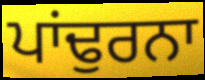
ਪਾਂਢੁਰਨਾ